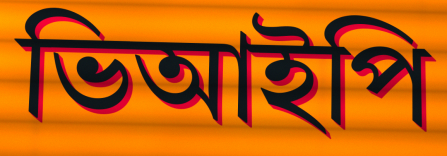
ভিআইপি